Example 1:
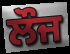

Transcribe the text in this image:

ਲੌਜ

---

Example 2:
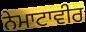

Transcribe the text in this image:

ਨੇਮਾਟਾਵੀਰ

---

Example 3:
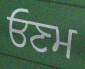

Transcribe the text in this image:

ਓਣਮ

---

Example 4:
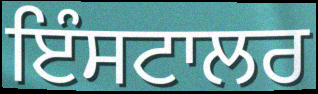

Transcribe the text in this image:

ਇੰਸਟਾਲਰ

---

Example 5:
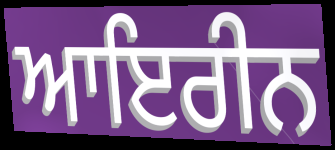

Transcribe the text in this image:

ਆਇਰੀਨ